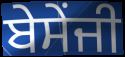
ਬੇਸੇਂਜੀ